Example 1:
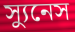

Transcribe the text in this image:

স্যুনেস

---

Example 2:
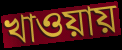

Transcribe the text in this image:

খাওয়ায়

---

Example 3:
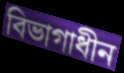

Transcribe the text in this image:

বিভাগাধীন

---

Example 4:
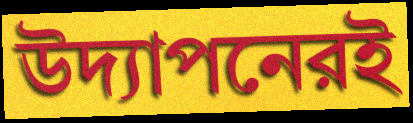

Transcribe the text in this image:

উদ্যাপনেরই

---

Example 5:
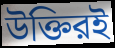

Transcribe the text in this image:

উক্তিরই